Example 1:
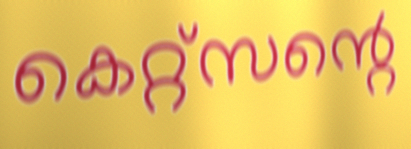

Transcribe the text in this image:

കെറ്റ്സന്റെ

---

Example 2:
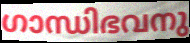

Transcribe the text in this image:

ഗാന്ധിഭവനു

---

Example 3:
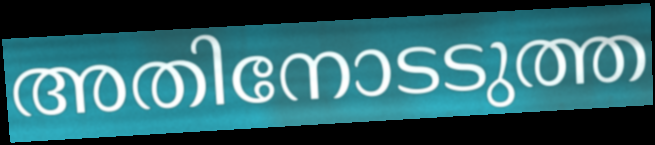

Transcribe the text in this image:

അതിനോടടുത്ത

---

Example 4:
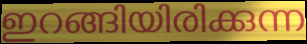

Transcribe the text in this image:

ഇറങ്ങിയിരിക്കുന്ന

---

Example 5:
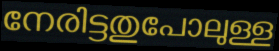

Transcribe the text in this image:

നേരിട്ടതുപോലുള്ള